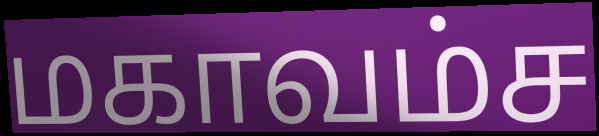
மகாவம்ச